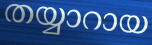
തയ്യാറായ